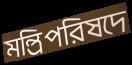
মন্ত্রিপরিষদে